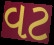
વટ